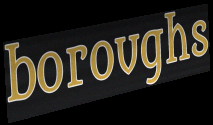
boroughs